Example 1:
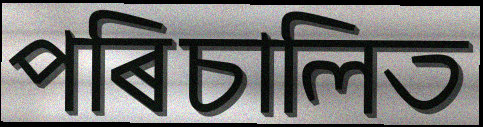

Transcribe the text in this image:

পৰিচালিত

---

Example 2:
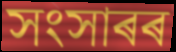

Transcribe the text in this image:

সংসাৰৰ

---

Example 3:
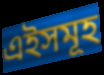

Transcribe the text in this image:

এইসমূহ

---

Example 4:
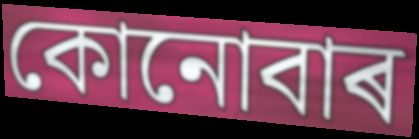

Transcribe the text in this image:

কোনোবাৰ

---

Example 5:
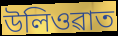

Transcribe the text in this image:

উলিওৱাত